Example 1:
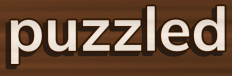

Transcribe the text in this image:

puzzled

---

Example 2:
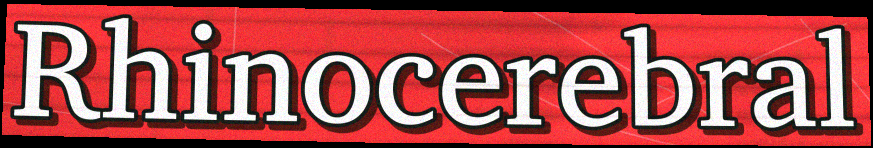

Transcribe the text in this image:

Rhinocerebral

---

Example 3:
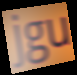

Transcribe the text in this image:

jgu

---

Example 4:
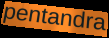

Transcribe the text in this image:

pentandra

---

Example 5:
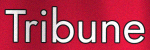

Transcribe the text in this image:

Tribune